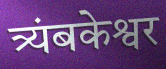
त्र्यंबकेश्वर